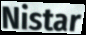
Nistar